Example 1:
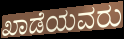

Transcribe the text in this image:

ಖಾಡೆಯವರು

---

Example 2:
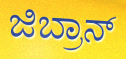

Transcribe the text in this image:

ಜಿಬ್ರಾನ್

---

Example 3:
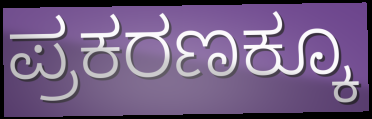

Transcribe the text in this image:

ಪ್ರಕರಣಕ್ಕೂ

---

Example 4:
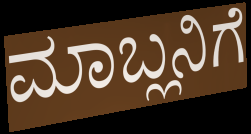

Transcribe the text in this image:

ಮಾಬ್ಲನಿಗೆ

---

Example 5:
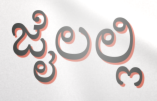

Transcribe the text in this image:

ಜೈಲಲ್ಲಿ